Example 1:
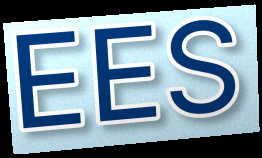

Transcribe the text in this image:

EES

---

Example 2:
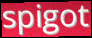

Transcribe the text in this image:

spigot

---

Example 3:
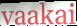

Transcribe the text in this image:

vaakai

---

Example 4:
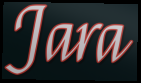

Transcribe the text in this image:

Jara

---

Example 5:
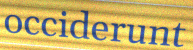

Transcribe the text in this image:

occiderunt